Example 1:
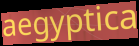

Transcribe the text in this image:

aegyptica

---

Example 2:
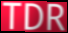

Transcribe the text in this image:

TDR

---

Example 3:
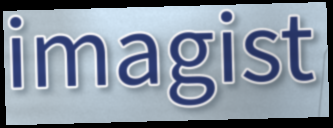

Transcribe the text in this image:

imagist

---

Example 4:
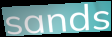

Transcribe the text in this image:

sands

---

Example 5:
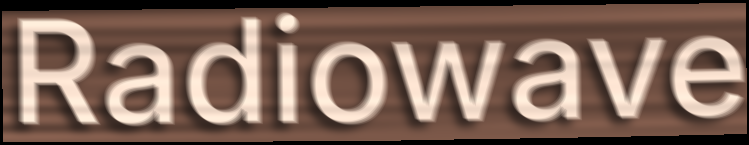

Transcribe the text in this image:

Radiowave